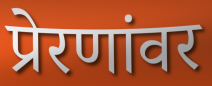
प्रेरणांवर